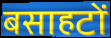
बसाहटों